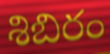
శిబిరం